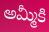
అమ్మీకి